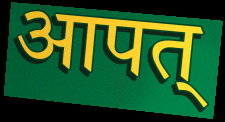
आपत्